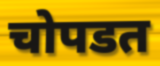
चोपडत